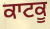
ਕਾਟਕੂ